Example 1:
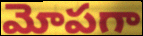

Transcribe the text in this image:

మోపగా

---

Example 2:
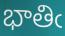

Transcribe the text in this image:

భాతిఁ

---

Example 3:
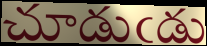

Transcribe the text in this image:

చూడుఁడు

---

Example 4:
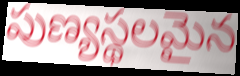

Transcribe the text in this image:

పుణ్యస్థలమైన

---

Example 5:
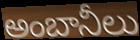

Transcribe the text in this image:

అంబానీలు